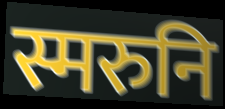
स्मरुनि